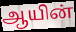
ஆயின்